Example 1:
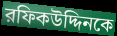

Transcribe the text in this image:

রফিকউদ্দিনকে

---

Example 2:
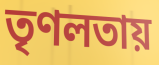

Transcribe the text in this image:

তৃণলতায়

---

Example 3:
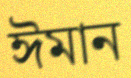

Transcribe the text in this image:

ঈমান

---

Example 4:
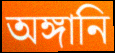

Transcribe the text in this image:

অঙ্গানি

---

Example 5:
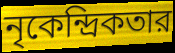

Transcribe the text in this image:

নৃকেন্দ্রিকতার